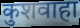
कुशवाहा